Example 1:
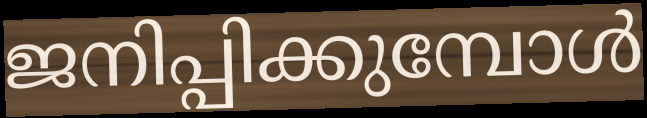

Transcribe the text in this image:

ജനിപ്പിക്കുമ്പോൾ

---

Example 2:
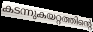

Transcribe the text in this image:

കടന്നുകയറ്റത്തിന്റെ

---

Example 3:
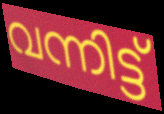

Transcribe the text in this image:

വന്നിട്ട്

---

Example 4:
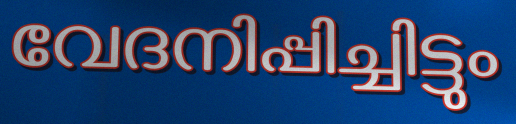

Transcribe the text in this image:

വേദനിപ്പിച്ചിട്ടും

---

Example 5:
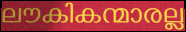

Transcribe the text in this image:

ലൗകികന്മാരല്ല